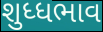
શુધ્ધભાવ